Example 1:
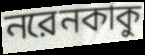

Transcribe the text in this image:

নরেনকাকু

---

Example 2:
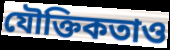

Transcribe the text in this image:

যৌক্তিকতাও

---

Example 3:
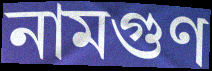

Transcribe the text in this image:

নামগুণ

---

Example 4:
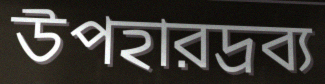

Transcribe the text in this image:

উপহারদ্রব্য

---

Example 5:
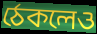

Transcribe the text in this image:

ঠেকলেও